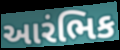
આરંભિક